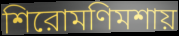
শিরোমণিমশায়